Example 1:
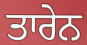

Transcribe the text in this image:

ਤਾਰੇਨ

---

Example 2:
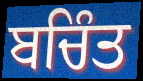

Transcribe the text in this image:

ਬਚਿੰਤ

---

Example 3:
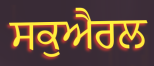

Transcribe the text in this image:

ਸਕੁਐਰਲ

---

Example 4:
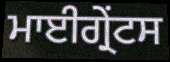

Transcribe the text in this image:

ਮਾਈਗ੍ਰੇਂਟਸ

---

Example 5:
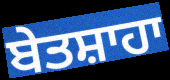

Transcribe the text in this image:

ਬੇਤਸ਼ਾਹਾ